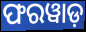
ଫରୱାଡ଼